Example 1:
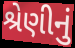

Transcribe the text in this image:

શ્રેણીનું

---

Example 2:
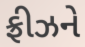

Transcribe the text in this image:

ફ્રીઝને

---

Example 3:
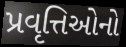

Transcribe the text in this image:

પ્રવૃત્તિઓનો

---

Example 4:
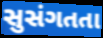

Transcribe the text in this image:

સુસંગતતા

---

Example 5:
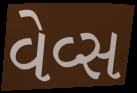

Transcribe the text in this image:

વેવ્સ